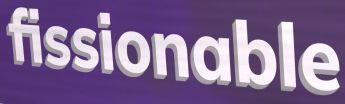
fissionable